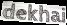
dekhai